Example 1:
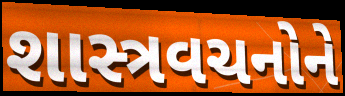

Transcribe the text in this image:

શાસ્ત્રવચનોને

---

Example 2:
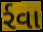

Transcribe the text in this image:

ર્રવા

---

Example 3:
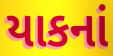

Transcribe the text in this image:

યાકનાં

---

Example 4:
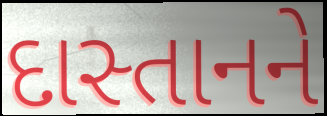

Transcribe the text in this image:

દાસ્તાનને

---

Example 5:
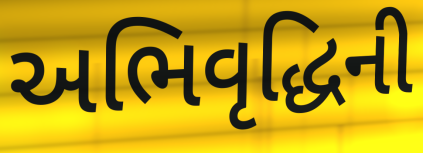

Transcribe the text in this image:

અભિવૃદ્ધિની